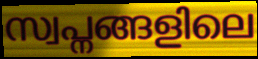
സ്വപ്നങ്ങളിലെ